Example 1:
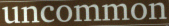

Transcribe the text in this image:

uncommon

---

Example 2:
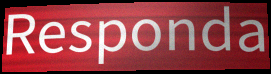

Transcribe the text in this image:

Responda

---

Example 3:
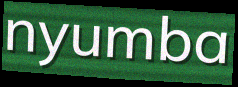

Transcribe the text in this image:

nyumba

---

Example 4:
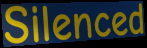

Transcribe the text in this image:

Silenced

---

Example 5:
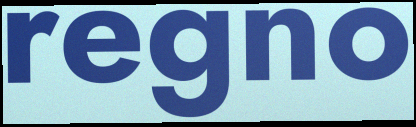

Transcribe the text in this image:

regno